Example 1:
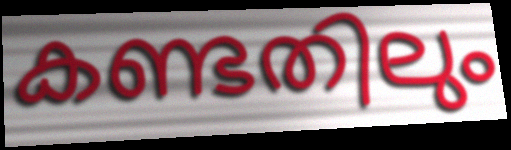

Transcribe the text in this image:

കണ്ടതിലും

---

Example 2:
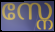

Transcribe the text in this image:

സ്നേ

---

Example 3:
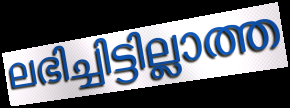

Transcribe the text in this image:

ലഭിച്ചിട്ടില്ലാത്ത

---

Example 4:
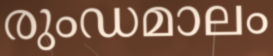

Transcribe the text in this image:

രുംഡമാലം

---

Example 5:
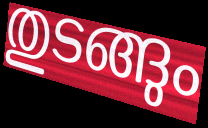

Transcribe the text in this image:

തുടങ്ങും